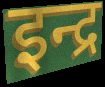
इन्द्र